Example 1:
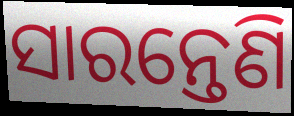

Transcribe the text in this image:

ସାରନ୍ତେଣି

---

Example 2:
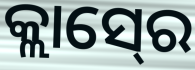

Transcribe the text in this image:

କ୍ଲାସ୍‍ରେ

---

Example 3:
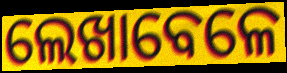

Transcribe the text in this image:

ଲେଖାବେଳେ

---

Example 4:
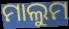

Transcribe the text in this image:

ମାଲୁମ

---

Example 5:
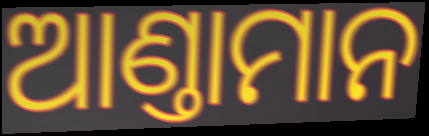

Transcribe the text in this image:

ଆଣ୍ତାମାନ